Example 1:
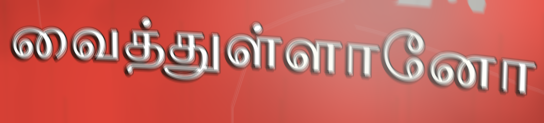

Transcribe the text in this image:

வைத்துள்ளானோ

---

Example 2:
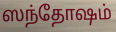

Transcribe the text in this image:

ஸந்தோஷம்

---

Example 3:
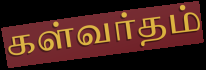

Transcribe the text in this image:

கள்வர்தம்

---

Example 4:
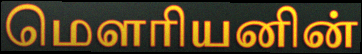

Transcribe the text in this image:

மௌரியனின்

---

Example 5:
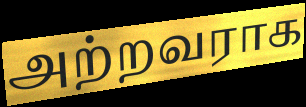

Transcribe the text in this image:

அற்றவராக